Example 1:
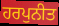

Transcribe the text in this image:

ਹਰਪੁਨੀਤ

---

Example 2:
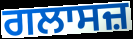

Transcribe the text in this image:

ਗਲਾਸਜ਼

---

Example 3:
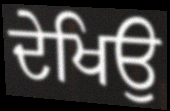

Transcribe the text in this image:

ਦੇਖਿਉ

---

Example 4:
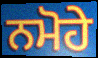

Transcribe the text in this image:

ਨਮੋਹੇ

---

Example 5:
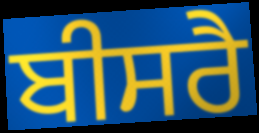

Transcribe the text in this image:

ਬੀਸਰੈ